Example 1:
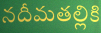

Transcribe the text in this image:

నదీమతల్లికి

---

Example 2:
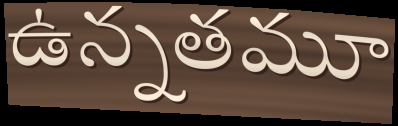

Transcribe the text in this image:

ఉన్నతమూ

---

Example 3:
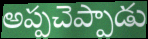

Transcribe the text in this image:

అప్పచెప్పాడు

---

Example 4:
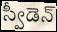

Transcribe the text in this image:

స్వీడెన్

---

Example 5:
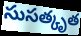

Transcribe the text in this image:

సుసత్కృత